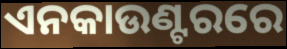
ଏନକାଉଣ୍ଟରରେ